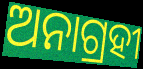
ଅନାଗ୍ରହୀ